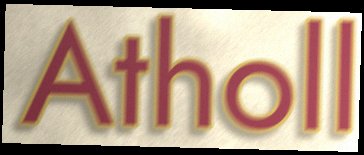
Atholl